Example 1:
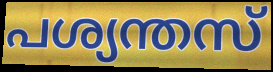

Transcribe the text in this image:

പശ്യന്തസ്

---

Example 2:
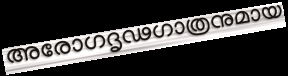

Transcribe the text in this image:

അരോഗദൃഢഗാത്രനുമായ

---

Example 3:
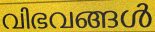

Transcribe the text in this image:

വിഭവങ്ങൾ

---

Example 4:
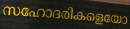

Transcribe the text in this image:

സഹോദരികളെയോ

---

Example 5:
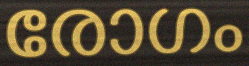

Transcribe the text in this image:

രോഗം